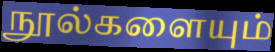
நூல்களையும்